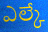
ఎల్కే